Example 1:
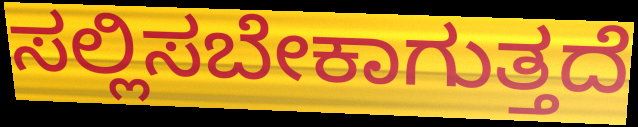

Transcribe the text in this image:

ಸಲ್ಲಿಸಬೇಕಾಗುತ್ತದೆ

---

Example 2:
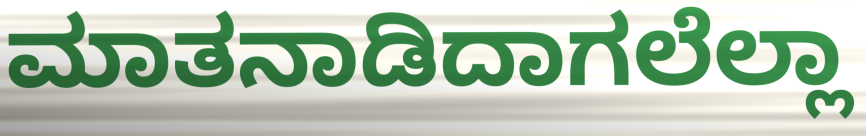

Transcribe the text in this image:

ಮಾತನಾಡಿದಾಗಲೆಲ್ಲಾ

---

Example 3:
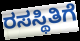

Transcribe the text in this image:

ರಸಸ್ಥಿತಿಗೆ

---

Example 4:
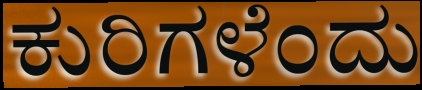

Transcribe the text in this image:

ಕುರಿಗಳೆಂದು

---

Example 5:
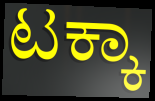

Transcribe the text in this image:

ಟಕ್ಕಾ